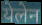
येलेन